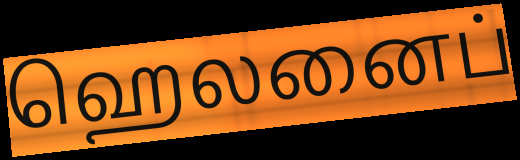
ஹெலனைப்